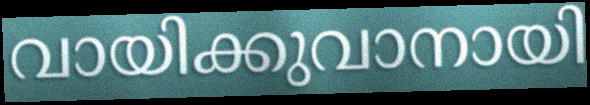
വായിക്കുവാനായി